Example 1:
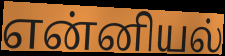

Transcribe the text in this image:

என்னியல்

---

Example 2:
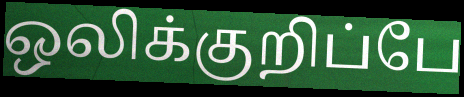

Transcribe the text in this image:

ஒலிக்குறிப்பே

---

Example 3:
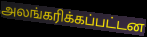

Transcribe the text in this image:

அலங்கரிக்கப்பட்டன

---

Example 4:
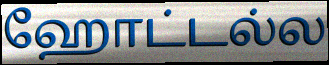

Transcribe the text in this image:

ஹோட்டல்ல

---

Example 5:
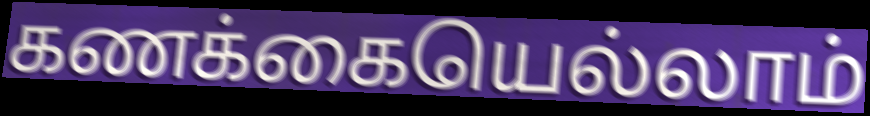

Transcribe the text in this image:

கணக்கையெல்லாம்